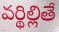
వర్థిల్లితే